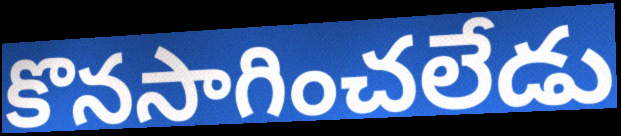
కొనసాగించలేడు